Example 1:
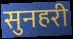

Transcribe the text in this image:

सुनहरी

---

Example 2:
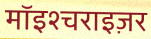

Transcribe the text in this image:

मॉइश्चराइज़र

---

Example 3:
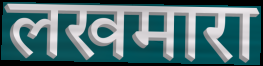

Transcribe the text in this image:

लखमारा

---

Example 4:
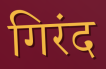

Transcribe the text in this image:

गिरंद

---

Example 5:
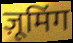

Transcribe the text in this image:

ज़ूमिंग